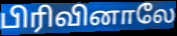
பிரிவினாலே